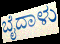
ಬೈದಾಳು